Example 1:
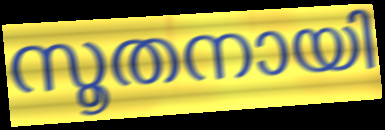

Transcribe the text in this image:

സൂതനായി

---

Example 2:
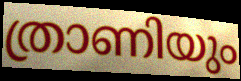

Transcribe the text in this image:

ത്രാണിയും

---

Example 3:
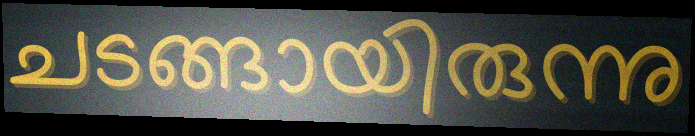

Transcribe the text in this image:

ചടങ്ങായിരുന്നു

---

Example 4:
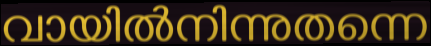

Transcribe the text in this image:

വായിൽനിന്നുതന്നെ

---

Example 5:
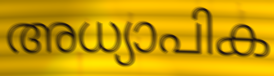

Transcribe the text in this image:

അധ്യാപിക